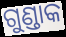
ଗୁଣ୍ଡାକ